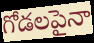
గోడలపైనా